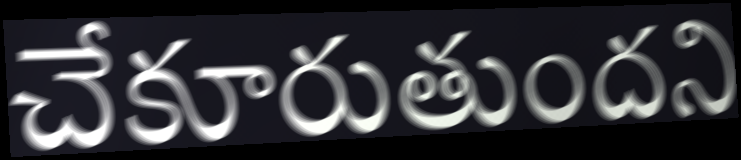
చేకూరుతుందని